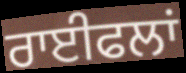
ਰਾਈਫਲਾਂ